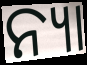
ନ୍ୟା